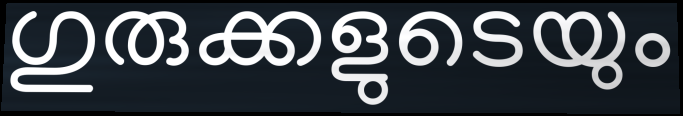
ഗുരുക്കളുടെയും